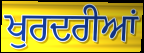
ਖੁਰਦਰੀਆਂ